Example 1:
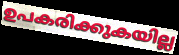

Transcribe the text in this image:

ഉപകരിക്കുകയില്ല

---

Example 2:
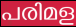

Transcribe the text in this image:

പരിമള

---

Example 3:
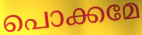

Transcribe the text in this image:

പൊക്കമേ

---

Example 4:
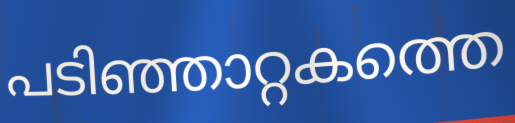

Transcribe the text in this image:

പടിഞ്ഞാറ്റകത്തെ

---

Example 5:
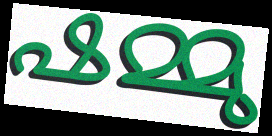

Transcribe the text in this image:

ഷമ്മു